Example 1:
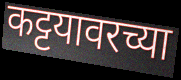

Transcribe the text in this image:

कट्टयावरच्या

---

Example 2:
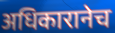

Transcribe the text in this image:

अधिकारानेच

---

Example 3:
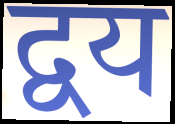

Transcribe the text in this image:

द्वय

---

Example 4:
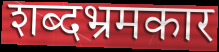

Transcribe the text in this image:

शब्दभ्रमकार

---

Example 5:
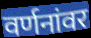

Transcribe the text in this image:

वर्णनांवर